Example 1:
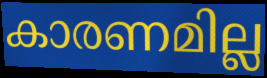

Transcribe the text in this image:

കാരണമില്ല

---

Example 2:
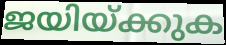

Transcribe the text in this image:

ജയിയ്ക്കുക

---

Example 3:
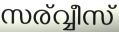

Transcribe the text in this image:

സര്വ്വീസ്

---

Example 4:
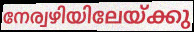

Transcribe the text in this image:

നേര്വഴിയിലേയ്ക്കു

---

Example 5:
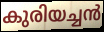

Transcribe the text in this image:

കുരിയച്ചൻ